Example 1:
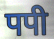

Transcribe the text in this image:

पपी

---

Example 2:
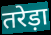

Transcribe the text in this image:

तरेड़ा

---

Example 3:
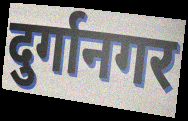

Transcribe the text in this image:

दुर्गानगर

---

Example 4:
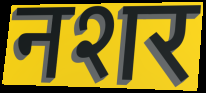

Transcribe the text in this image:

नशर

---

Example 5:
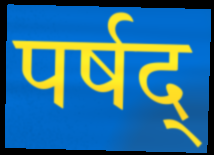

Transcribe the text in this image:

पर्षद्